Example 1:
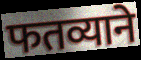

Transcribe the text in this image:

फतव्याने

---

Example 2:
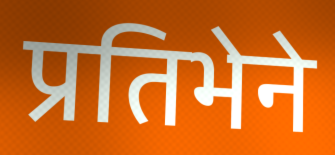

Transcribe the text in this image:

प्रतिभेने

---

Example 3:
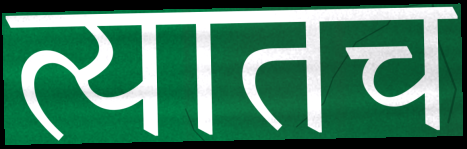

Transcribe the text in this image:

त्यातच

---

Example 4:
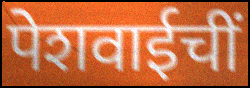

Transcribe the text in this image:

पेशवाईचीं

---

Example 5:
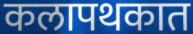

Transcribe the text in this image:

कलापथकात